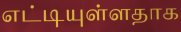
எட்டியுள்ளதாக